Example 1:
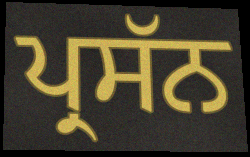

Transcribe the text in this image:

ਪ੍ਰਸੱਨ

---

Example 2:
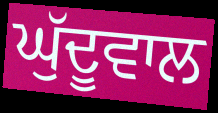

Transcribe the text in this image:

ਘੁੱਦੂਵਾਲ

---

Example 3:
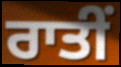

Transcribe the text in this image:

ਰਾਤੀਂ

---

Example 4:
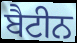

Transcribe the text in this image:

ਬੈਟੀਨ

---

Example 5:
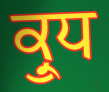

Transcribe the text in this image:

ਕ੍ਰੁਧ